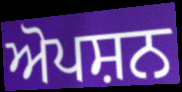
ਅੋਪਸ਼ਨ